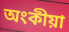
অংকীয়া